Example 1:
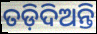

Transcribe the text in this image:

ତଡ଼ିଦିଅନ୍ତି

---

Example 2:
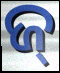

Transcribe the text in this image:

ଜ୍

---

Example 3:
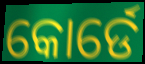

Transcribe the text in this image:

କୋର୍ଡେ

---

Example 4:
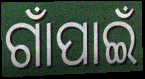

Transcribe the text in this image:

ଗାଁପାଇଁ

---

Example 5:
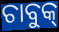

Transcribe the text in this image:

ଚାବୁକ୍